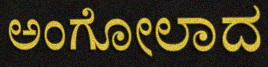
ಅಂಗೋಲಾದ